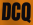
DCQ